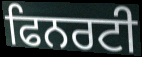
ਫਿਨਰਟੀ